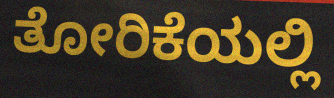
ತೋರಿಕೆಯಲ್ಲಿ